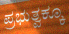
ಪ್ರಭುತ್ವಕ್ಕೂ